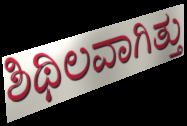
ಶಿಥಿಲವಾಗಿತ್ತು